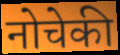
नोचेकी